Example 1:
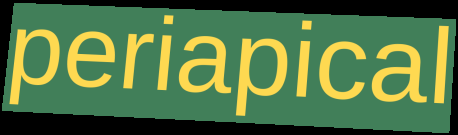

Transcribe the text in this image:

periapical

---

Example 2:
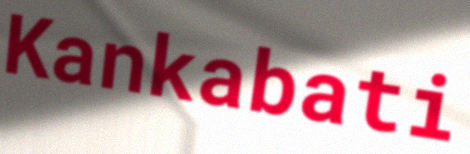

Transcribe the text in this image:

Kankabati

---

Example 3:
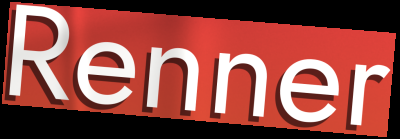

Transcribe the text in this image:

Renner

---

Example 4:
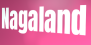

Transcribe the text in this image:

Nagaland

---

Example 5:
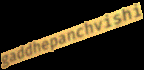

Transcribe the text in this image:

gaddhepanchvishi